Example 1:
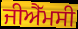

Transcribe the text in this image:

ਜੀਐੱਮਸੀ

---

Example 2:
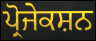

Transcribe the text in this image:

ਪ੍ਰੋਜੇਕਸ਼ਨ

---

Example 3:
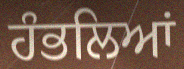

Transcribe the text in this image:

ਹੰਭਲਿਆਂ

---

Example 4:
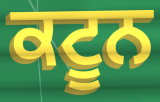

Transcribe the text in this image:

ਕਟੂਨ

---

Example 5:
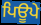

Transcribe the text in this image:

ਪਿਊਪੇ